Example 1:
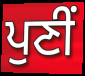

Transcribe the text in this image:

ਪੁਣੀਂ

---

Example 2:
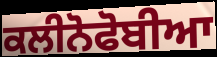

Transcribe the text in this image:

ਕਲੀਨੋਫੋਬੀਆ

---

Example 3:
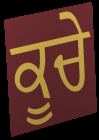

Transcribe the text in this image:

ਕੂਚੇ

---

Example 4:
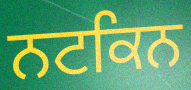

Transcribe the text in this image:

ਨਟਕਿਨ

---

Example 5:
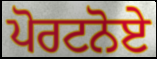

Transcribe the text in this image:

ਪੋਰਟਨੋਏ